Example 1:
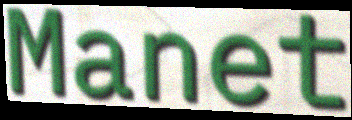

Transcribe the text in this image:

Manet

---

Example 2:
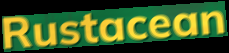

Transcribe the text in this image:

Rustacean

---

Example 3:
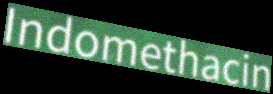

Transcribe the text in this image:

Indomethacin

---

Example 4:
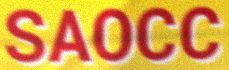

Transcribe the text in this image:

SAOCC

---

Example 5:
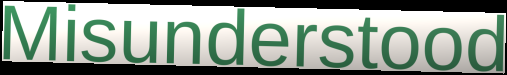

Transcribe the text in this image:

Misunderstood